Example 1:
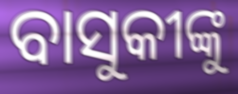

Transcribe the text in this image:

ବାସୁକୀଙ୍କୁ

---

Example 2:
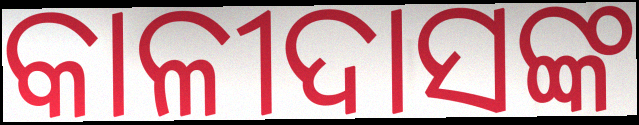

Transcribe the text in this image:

କାଳୀଦାସଙ୍କ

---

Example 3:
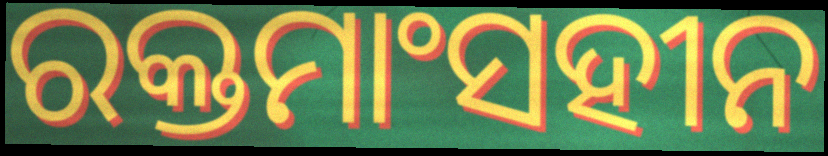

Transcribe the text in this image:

ରକ୍ତମାଂସହୀନ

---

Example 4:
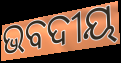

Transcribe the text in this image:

ଭବଦୀୟ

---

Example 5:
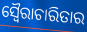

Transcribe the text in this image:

ସ୍ୱୈରାଚାରିତାର